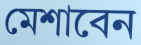
মেশাবেন